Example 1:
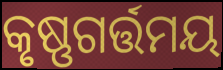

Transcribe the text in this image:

କୃଷ୍ଣଗର୍ତ୍ତମୟ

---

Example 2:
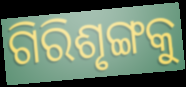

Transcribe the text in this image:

ଗିରିଶୃଙ୍ଗକୁ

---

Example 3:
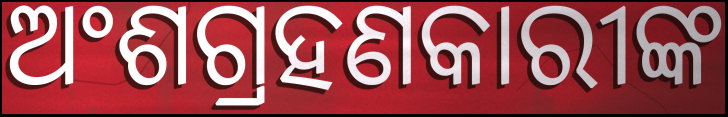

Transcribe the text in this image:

ଅଂଶଗ୍ରହଣକାରୀଙ୍କ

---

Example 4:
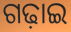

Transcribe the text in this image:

ଗଢ଼ାଇ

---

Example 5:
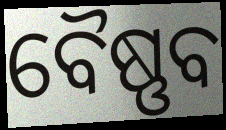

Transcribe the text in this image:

ବୈଷ୍ଣବ